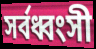
সর্বধ্বংসী